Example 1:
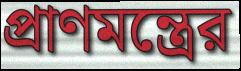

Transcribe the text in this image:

প্রাণমন্ত্রের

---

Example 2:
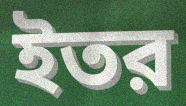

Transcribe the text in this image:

ইতর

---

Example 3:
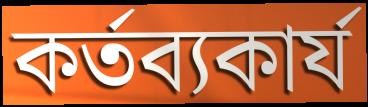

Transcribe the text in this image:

কর্তব্যকার্য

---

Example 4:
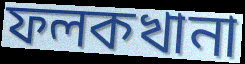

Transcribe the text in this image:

ফলকখানা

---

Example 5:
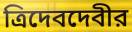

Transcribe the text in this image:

ত্রিদেবদেবীর